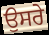
ਉਸਰੇ